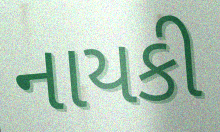
નાયકી